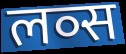
लव्स